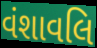
વંશાવલિ